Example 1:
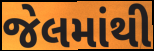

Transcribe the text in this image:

જેલમાંથી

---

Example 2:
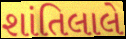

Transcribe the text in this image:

શાંતિલાલે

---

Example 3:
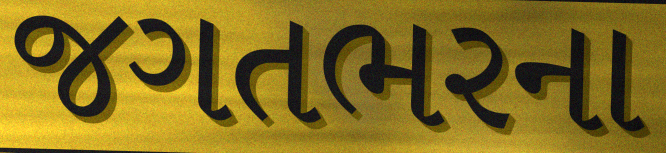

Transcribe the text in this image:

જગતભરના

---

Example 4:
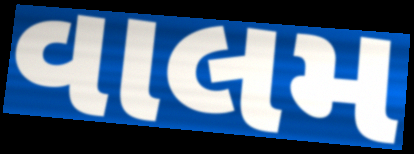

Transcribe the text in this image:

વાલમ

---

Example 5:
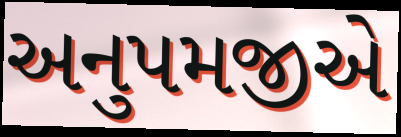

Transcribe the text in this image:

અનુપમજીએ